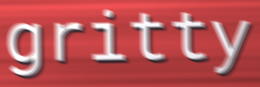
gritty